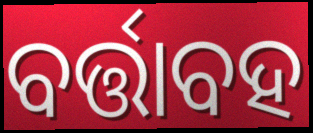
ବର୍ତ୍ତାବହ